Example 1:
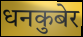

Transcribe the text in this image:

धनकुबेर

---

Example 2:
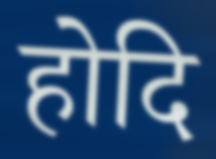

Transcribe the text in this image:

होदि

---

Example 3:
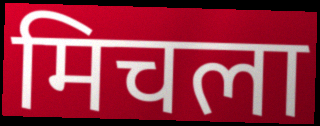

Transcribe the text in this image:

मिचला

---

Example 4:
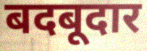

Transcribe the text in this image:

बदबूदार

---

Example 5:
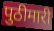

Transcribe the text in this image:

पुठीमारी